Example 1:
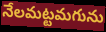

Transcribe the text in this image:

నేలమట్టమగును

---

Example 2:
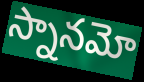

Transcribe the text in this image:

స్నానమో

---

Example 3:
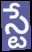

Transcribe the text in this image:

స్టే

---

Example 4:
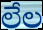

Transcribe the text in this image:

లేల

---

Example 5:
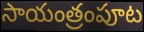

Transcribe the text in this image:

సాయంత్రంపూట